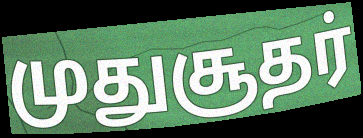
முதுசூதர்